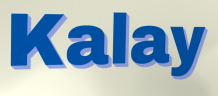
Kalay